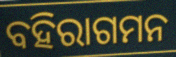
ବହିରାଗମନ